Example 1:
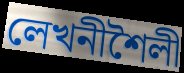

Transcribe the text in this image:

লেখনীশৈলী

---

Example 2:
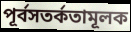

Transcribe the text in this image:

পূর্বসতর্কতামূলক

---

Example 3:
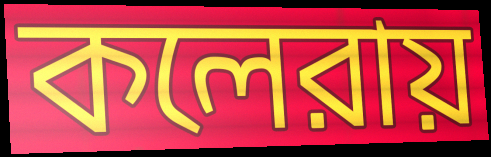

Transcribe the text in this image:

কলেরায়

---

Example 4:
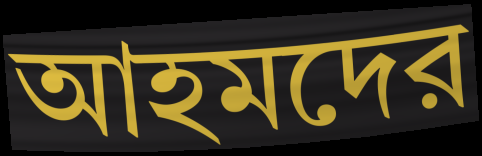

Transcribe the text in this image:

আহমদের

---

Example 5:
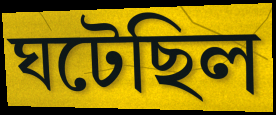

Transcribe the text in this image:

ঘটেছিল